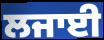
ਲਜਾਈ